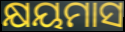
କ୍ଷୟମାସ